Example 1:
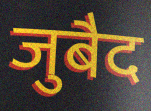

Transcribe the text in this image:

जुबैद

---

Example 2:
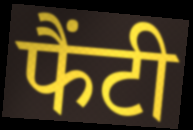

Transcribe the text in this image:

फैंटी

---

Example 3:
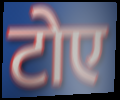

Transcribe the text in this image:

टोए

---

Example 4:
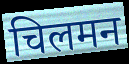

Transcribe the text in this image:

चिलमन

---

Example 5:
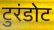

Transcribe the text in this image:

टुरंडोट